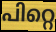
പിറ്റെ